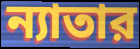
ন্যাতার